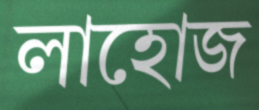
লাহোজ